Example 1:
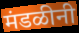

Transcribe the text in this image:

मंडळीनी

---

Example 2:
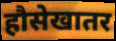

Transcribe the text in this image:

हौसेखातर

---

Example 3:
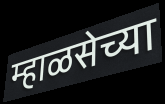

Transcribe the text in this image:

म्हाळसेच्या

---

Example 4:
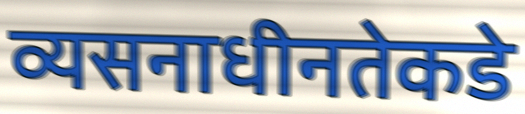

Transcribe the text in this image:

व्यसनाधीनतेकडे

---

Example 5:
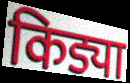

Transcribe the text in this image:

किड्या